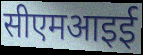
सीएमआइई